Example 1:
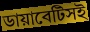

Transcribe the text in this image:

ডায়াবেটিসই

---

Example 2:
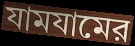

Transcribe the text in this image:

যামযামের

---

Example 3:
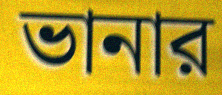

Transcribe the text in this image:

ভানার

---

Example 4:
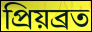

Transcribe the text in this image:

প্রিয়ব্রত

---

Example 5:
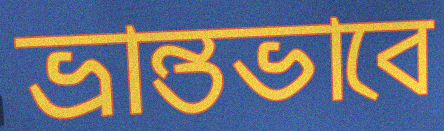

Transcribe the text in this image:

ভ্রান্তভাবে